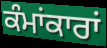
ਕੰਮਾਂਕਾਰਾਂ